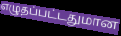
எழுதப்பட்டதுமான